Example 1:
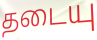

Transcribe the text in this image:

தடையு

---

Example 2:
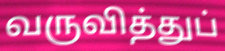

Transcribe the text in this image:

வருவித்துப்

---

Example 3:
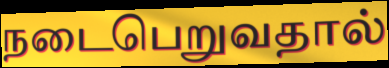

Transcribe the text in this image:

நடைபெறுவதால்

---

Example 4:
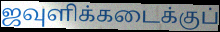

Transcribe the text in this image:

ஜவுளிக்கடைக்குப்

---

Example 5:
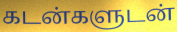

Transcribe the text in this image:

கடன்களுடன்